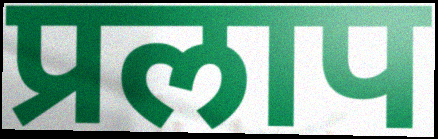
प्रलाप